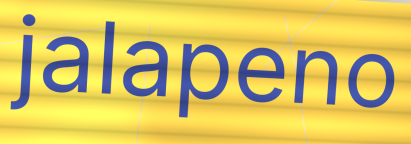
jalapeno